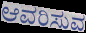
ಆವರಿಸುವ